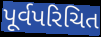
પૂર્વપરિચિત